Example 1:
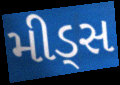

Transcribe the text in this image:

મીડ્સ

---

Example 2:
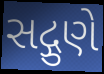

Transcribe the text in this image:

સદ્ગુણે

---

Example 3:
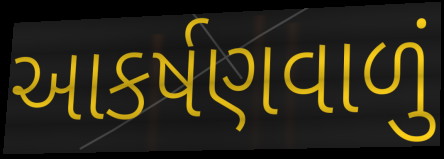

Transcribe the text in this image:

આકર્ષણવાળું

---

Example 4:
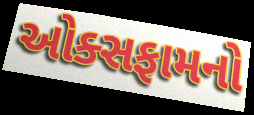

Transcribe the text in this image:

ઓક્સફામનો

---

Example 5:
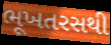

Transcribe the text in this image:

ભૂખતરસથી